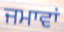
ਜਮਾਵਾਂ